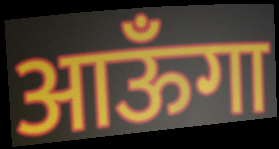
आऊँगा